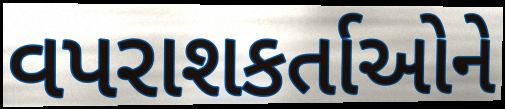
વપરાશકર્તાઓને